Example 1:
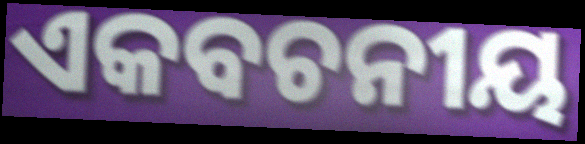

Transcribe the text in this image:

ଏକବଚନୀୟ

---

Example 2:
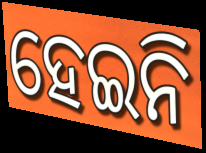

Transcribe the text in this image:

ହେଇନି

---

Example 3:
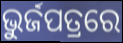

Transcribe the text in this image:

ଭୁର୍ଜପତ୍ରରେ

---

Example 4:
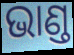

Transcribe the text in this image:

ଭାଣ୍ଡ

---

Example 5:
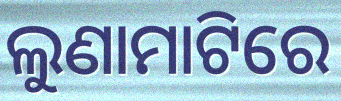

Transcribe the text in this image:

ଲୁଣାମାଟିରେ